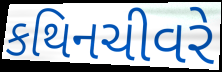
કથિનચીવરે